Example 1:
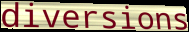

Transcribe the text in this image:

diversions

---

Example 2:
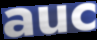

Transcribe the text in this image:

auc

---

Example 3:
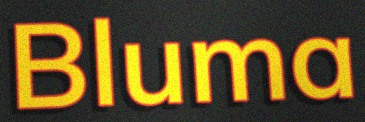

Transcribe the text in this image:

Bluma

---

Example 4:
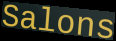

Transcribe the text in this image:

Salons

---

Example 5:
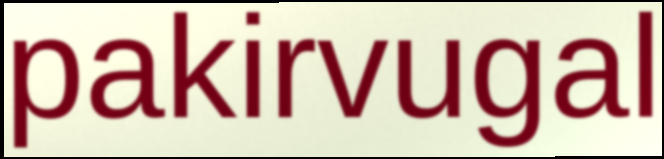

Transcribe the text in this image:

pakirvugal